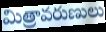
మిత్రావరుణులు